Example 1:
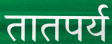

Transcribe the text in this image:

तातपर्य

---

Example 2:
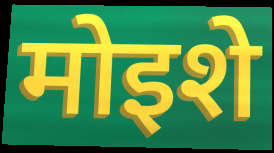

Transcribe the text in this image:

मोइशे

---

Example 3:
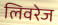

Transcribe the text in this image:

लिवरेज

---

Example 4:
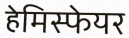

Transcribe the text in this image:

हेमिस्फेयर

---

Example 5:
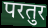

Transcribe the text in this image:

परतुर